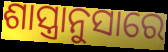
ଶାସ୍ତ୍ରାନୁସାରେ